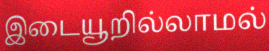
இடையூறில்லாமல்